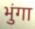
भुंगा